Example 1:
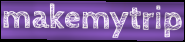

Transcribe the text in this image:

makemytrip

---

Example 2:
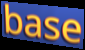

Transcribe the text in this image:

base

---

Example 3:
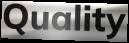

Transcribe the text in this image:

Quality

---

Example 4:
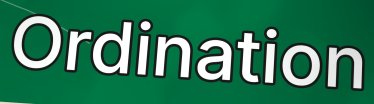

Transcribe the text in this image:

Ordination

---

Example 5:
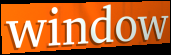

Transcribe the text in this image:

window